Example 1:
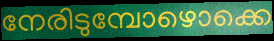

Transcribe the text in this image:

നേരിടുമ്പോഴൊക്കെ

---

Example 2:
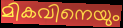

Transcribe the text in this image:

മികവിനെയും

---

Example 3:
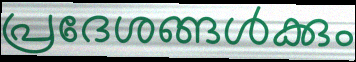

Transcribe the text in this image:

പ്രദേശങ്ങൾക്കും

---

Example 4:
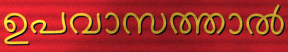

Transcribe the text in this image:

ഉപവാസത്താൽ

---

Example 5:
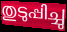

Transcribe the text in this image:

തുടുപ്പിച്ചു